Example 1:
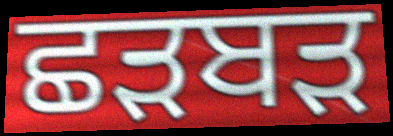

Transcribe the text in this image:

ਛੜਬੜ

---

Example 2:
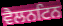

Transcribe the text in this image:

ਵੈਲਨਟਿਨ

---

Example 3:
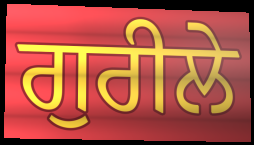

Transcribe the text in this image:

ਗੁਰੀਲੇ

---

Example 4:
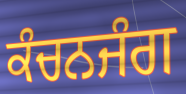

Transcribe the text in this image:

ਕੰਚਨਜੰਗ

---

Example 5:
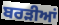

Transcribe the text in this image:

ਬਰੜੀਆਂ